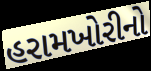
હરામખોરીનો